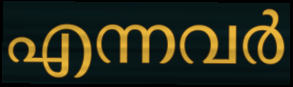
എന്നവർ